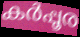
കർപ്പൂര